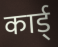
कार्ड्